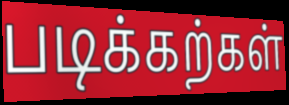
படிக்கற்கள்